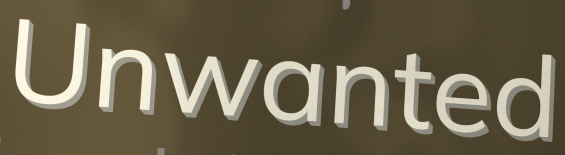
Unwanted